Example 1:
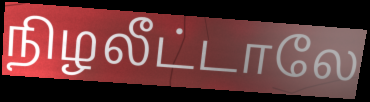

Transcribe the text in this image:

நிழலீட்டாலே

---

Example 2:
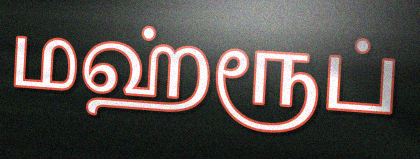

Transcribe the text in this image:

மஹ்ரூப்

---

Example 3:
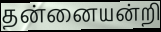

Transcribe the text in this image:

தன்னையன்றி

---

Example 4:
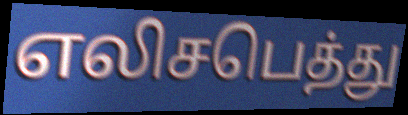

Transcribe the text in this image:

எலிசபெத்து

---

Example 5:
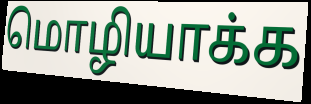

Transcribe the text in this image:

மொழியாக்க